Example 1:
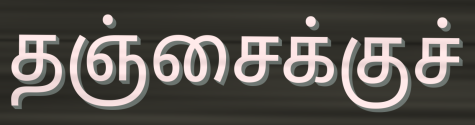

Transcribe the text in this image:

தஞ்சைக்குச்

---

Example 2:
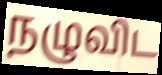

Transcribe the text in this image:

நழுவிட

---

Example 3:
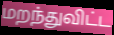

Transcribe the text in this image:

மறந்துவிட்ட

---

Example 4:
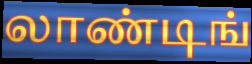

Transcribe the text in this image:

லாண்டிங்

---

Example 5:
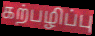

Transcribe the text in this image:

கற்பழிப்பு